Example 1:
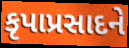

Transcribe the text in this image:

કૃપાપ્રસાદને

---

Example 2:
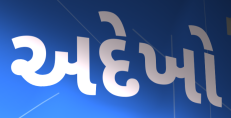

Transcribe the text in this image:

અદેખો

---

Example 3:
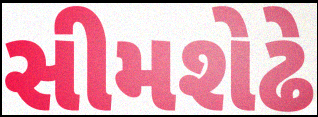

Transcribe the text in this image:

સીમશેઢે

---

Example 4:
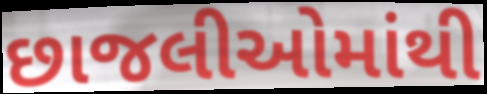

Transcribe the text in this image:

છાજલીઓમાંથી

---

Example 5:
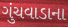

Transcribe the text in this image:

ગુંચવાડાના